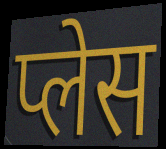
प्लेस